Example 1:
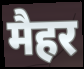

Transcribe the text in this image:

मैहर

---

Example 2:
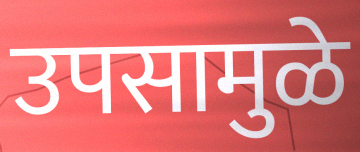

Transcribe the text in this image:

उपसामुळे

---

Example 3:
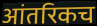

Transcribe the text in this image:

आंतरिकच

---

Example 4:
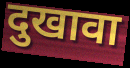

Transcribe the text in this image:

दुखावा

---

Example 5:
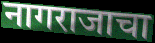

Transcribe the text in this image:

नागराजाचा